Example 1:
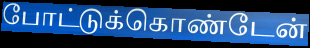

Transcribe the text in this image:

போட்டுக்கொண்டேன்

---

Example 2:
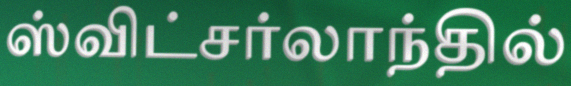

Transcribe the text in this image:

ஸ்விட்சர்லாந்தில்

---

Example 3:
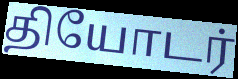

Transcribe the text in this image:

தியோடர்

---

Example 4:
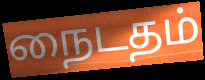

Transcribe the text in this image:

நைடதம்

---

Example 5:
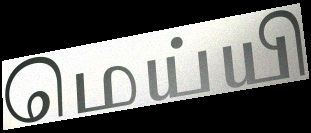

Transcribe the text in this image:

மெய்யி